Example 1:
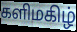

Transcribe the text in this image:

களிமகிழ்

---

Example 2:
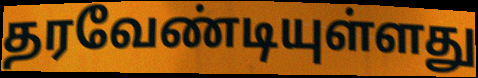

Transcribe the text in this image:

தரவேண்டியுள்ளது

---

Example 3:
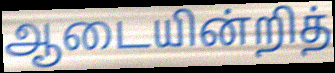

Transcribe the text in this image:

ஆடையின்றித்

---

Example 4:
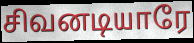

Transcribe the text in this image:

சிவனடியாரே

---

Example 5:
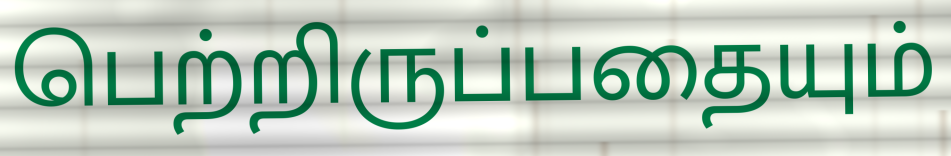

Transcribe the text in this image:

பெற்றிருப்பதையும்